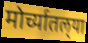
मोर्च्यातल्या